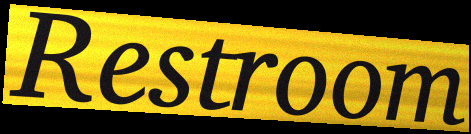
Restroom